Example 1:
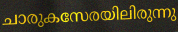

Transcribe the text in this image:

ചാരുകസേരയിലിരുന്നു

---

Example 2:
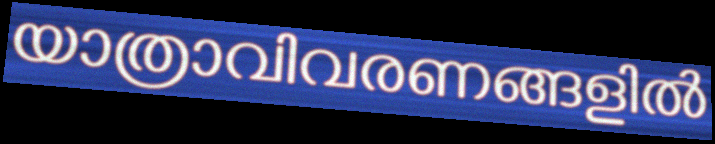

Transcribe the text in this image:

യാത്രാവിവരണങ്ങളിൽ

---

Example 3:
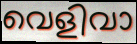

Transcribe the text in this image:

വെളിവാ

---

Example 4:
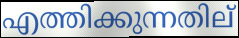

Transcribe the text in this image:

എത്തിക്കുന്നതില്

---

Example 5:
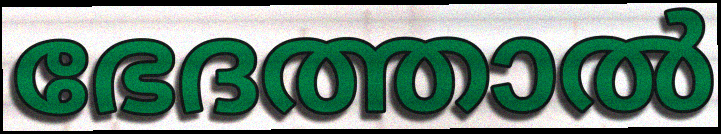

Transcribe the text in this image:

ഭേദത്താൽ